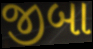
જીબા